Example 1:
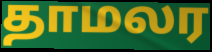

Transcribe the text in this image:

தாமலர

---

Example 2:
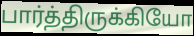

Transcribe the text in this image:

பார்த்திருக்கியோ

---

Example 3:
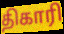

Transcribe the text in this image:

திகாரி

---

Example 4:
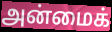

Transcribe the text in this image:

அன்மைக்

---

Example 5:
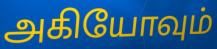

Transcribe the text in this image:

அகியோவும்